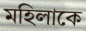
মহিলাকে